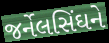
જર્નેલસિંઘને